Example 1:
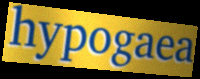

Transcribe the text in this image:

hypogaea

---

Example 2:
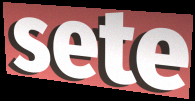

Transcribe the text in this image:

sete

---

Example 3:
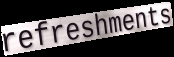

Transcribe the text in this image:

refreshments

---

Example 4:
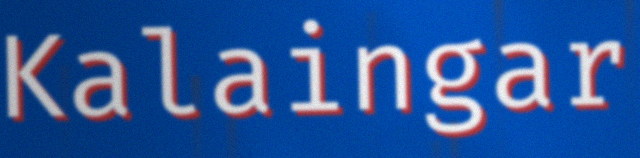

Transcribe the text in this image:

Kalaingar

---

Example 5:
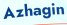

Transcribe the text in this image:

Azhagin